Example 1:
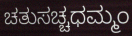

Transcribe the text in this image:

ಚತುಸಚ್ಚಧಮ್ಮಂ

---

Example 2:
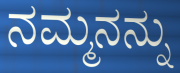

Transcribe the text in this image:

ನಮ್ಮನನ್ನು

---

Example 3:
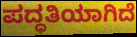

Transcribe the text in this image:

ಪದ್ಧತಿಯಾಗಿದೆ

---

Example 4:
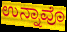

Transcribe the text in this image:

ಉನ್ನಾವೊ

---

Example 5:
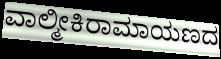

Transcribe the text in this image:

ವಾಲ್ಮೀಕಿರಾಮಾಯಣದ